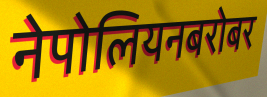
नेपोलियनबरोबर